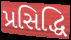
પ્રસિદ્ધિ